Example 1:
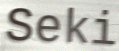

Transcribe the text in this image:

Seki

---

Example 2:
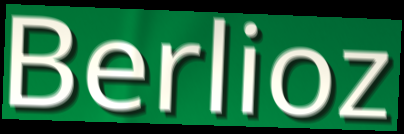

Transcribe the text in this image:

Berlioz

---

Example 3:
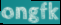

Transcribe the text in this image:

ongfk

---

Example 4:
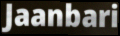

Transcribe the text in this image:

Jaanbari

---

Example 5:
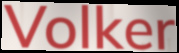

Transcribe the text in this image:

Volker